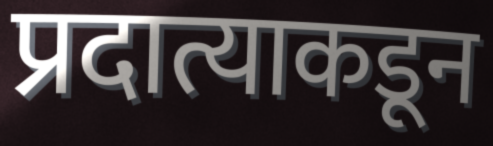
प्रदात्याकडून